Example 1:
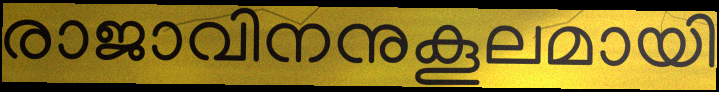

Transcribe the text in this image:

രാജാവിനനുകൂലമായി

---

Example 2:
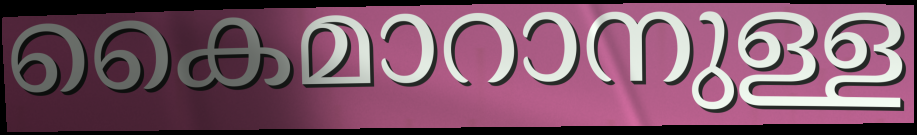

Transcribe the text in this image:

കൈമാറാനുള്ള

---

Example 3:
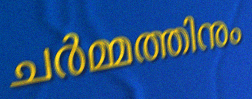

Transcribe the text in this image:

ചർമ്മത്തിനും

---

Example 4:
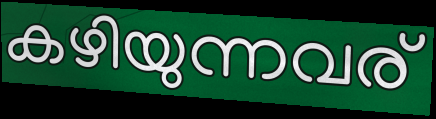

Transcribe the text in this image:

കഴിയുന്നവര്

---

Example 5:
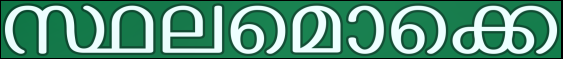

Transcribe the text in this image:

സ്ഥലമൊക്കെ